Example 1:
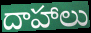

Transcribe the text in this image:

దాహాలు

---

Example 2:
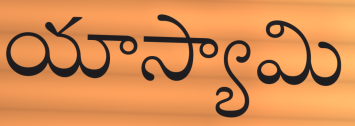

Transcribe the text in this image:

యాస్యామి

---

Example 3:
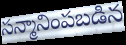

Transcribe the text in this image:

సన్మానింపబడిన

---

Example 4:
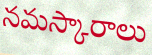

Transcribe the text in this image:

నమస్కారాలు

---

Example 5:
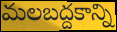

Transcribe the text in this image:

మలబద్దకాన్ని